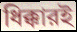
ধিক্কারই